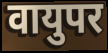
वायुपर